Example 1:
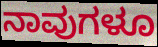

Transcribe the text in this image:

ನಾವುಗಳೂ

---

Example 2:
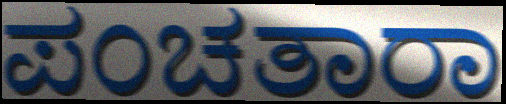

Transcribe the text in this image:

ಪಂಚತಾರಾ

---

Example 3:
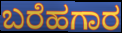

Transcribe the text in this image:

ಬರೆಹಗಾರ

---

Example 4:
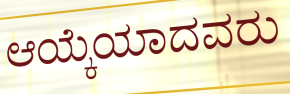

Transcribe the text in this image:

ಆಯ್ಕೆಯಾದವರು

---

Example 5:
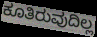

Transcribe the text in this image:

ಕೂತಿರುವುದಿಲ್ಲ